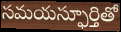
సమయస్ఫూర్తితో